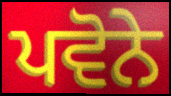
ਪਵੋਨੇ